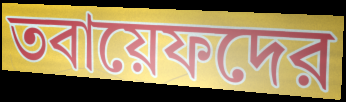
তবায়েফদের